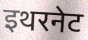
इथरनेट